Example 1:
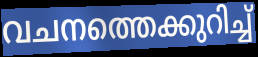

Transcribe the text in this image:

വചനത്തെക്കുറിച്ച്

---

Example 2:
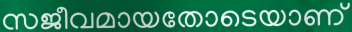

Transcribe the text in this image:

സജീവമായതോടെയാണ്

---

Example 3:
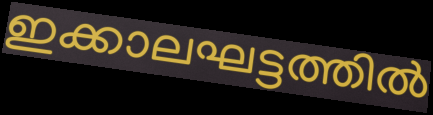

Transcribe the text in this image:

ഇക്കാലഘട്ടത്തിൽ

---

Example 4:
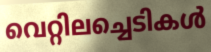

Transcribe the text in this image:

വെറ്റിലച്ചെടികൾ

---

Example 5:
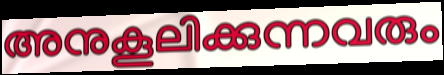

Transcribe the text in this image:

അനുകൂലിക്കുന്നവരും